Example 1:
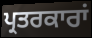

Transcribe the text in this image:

ਪ੍ਰਤਰਕਾਰਾਂ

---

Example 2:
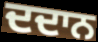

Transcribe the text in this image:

ਦਦਾਨ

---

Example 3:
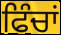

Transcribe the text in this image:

ਫਿੰਚਾਂ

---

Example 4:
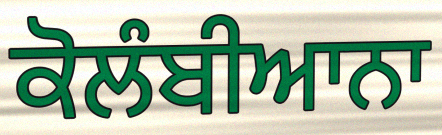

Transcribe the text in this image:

ਕੋਲੰਬੀਆਨਾ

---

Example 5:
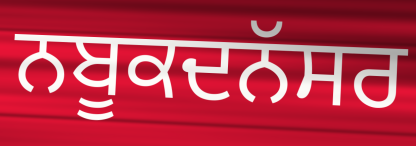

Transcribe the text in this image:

ਨਬੂਕਦਨੱਸਰ